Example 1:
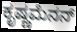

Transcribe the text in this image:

ಕೃಷ್ಣಮೆನನ್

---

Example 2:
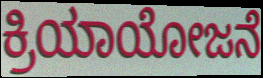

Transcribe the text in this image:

ಕ್ರಿಯಾಯೋಜನೆ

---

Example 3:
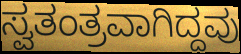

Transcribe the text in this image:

ಸ್ವತಂತ್ರವಾಗಿದ್ದವು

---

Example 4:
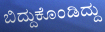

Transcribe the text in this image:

ಬಿದ್ದುಕೊಂಡಿದ್ದು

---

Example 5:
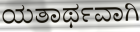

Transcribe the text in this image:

ಯತಾರ್ಥವಾಗಿ